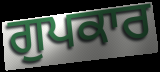
ਗੁਪਕਾਰ